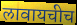
लावायचीच